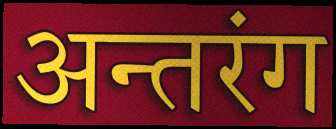
अन्तरंग